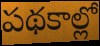
పథకాల్లో